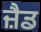
ਜ਼ੈਡ